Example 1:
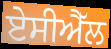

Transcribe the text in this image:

ਏਸੀਐੱਲ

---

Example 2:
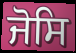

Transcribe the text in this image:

ਜੋਸਿ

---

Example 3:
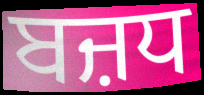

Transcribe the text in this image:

ਬਜ਼ਧ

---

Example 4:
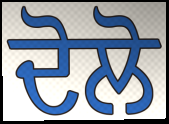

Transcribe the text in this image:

ਦੋਲੋ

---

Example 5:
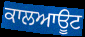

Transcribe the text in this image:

ਕਾਲਆਊਟ